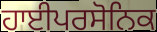
ਹਾਈਪਰਸੋਨਿਕ